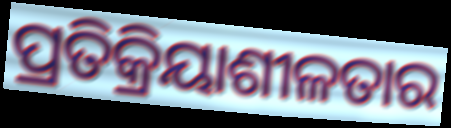
ପ୍ରତିକ୍ରିୟାଶୀଳତାର